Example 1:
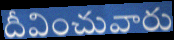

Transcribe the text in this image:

దీవించువారు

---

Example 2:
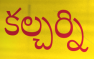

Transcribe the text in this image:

కల్చర్ని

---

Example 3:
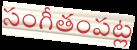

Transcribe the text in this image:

సంగీతంపట్ల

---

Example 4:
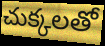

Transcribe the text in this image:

చుక్కలతో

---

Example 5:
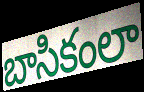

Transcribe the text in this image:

బాసికంలా